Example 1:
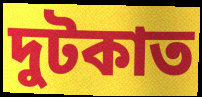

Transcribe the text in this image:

দুটকাত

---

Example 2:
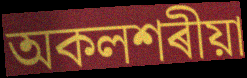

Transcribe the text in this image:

অকলশৰীয়া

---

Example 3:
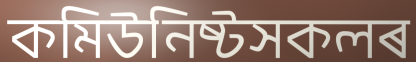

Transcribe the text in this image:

কমিউনিষ্টসকলৰ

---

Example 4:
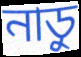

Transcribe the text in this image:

নাডু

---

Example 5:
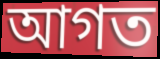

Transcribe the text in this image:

আগত